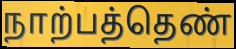
நாற்பத்தெண்